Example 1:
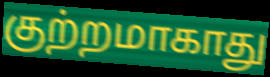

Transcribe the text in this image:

குற்றமாகாது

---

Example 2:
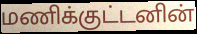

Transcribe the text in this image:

மணிக்குட்டனின்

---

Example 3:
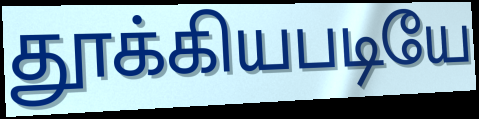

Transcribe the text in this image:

தூக்கியபடியே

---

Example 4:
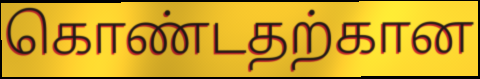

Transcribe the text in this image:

கொண்டதற்கான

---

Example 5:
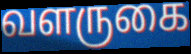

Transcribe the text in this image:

வளருகை